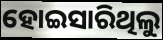
ହୋଇସାରିଥିଲୁ